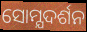
ସୋମ୍ଯଦର୍ଶନ